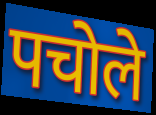
पचोले